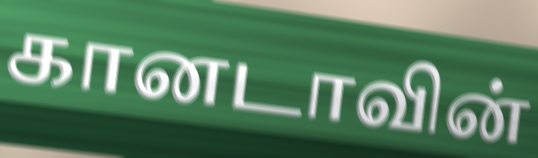
கானடாவின்